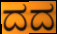
ದದ